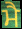
ਮੈ